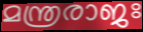
മന്ത്രരാജഃ